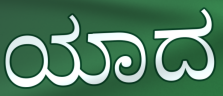
ಯಾದ